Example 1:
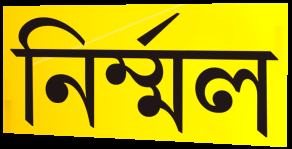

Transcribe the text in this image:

নির্ম্মল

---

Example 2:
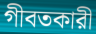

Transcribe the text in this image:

গীবতকারী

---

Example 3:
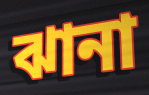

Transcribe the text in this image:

ঝানা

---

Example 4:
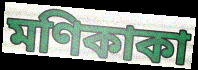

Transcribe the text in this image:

মণিকাকা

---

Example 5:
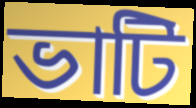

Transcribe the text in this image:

ভাটি